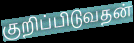
குறிப்பிடுவதன்